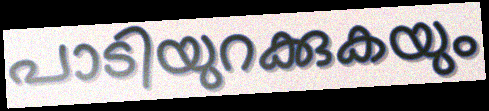
പാടിയുറക്കുകയും